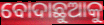
ବୋଦାଛୁଆକୁ